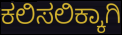
ಕಲಿಸಲಿಕ್ಕಾಗಿ